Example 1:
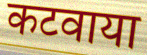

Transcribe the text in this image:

कटवाया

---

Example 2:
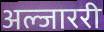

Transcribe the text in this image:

अल्जाररी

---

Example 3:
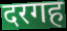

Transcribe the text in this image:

दरगह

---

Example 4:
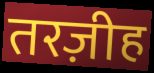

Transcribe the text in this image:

तरज़ीह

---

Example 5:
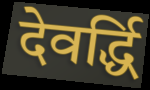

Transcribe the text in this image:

देवर्द्धि